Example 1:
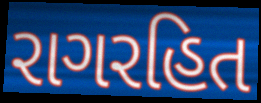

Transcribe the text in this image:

રાગરહિત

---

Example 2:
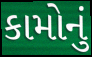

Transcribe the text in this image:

કામોનું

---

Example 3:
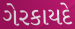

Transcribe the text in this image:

ગેરકાયદે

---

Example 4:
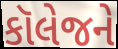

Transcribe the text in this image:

કૉલેજને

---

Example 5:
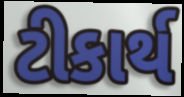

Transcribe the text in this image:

ટીકાર્થ